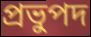
প্রভুপদ